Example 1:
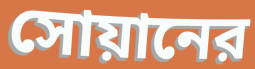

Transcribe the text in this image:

সোয়ানের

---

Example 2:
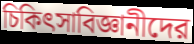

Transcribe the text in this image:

চিকিৎসাবিজ্ঞানীদের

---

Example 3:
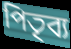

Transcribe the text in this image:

পিতৃব্য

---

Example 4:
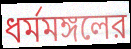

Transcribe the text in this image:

ধর্মমঙ্গলের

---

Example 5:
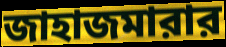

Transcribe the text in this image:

জাহাজমারার